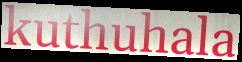
kuthuhala